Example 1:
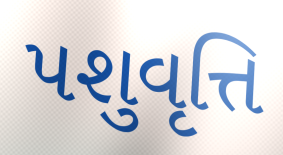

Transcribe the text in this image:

પશુવૃત્તિ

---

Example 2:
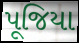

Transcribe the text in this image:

પૂજિયા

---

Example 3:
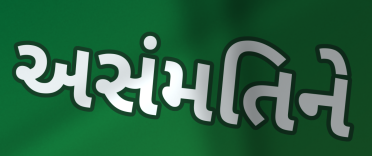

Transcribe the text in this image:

અસંમતિને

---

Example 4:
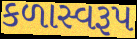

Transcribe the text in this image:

કળાસ્વરૂપ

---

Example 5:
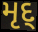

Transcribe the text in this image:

મૃદ્